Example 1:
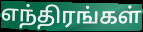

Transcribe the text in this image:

எந்திரங்கள்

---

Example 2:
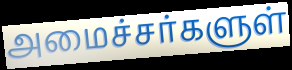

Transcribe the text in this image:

அமைச்சர்களுள்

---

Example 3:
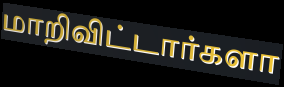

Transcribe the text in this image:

மாறிவிட்டார்களா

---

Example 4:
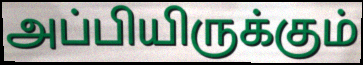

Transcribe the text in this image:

அப்பியிருக்கும்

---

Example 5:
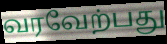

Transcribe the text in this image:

வரவேற்பது